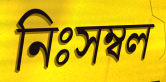
নিঃসম্বল